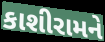
કાશીરામને